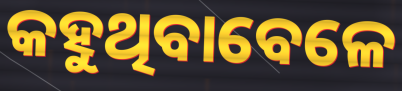
କହୁଥିବାବେଳେ